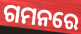
ଗମନରେ